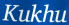
Kukhu